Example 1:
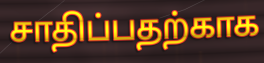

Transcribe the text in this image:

சாதிப்பதற்காக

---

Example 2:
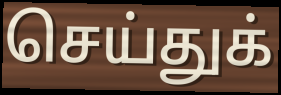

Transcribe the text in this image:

செய்துக்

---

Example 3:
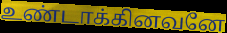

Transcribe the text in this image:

உண்டாக்கினவனே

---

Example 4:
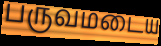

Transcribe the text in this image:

பருவமடைய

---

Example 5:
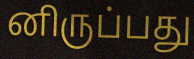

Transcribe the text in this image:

னிருப்பது